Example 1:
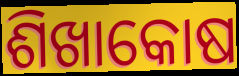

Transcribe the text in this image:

ଶିଖାକୋଷ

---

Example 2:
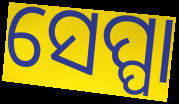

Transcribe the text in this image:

ସେପ୍ପା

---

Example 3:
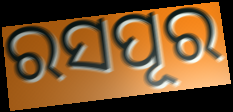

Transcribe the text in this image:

ରସପୂର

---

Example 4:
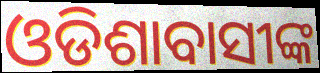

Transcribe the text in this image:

ଓଡିଶାବାସୀଙ୍କ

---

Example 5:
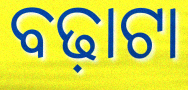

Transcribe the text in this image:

ବଢ଼ାଟା